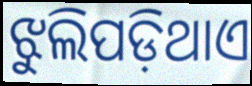
ଝୁଲିପଡ଼ିଥାଏ